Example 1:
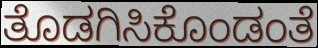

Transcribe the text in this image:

ತೊಡಗಿಸಿಕೊಂಡಂತೆ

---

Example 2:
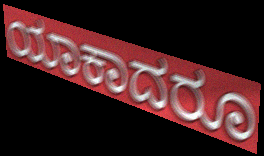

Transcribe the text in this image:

ಯಾಕಾದರೂ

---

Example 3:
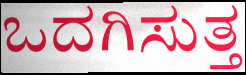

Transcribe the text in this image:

ಒದಗಿಸುತ್ತ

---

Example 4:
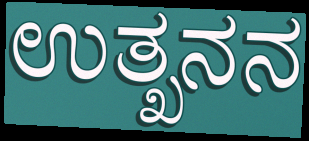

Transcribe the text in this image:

ಉತ್ಖನನ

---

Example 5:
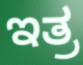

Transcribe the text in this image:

ಇತ್ರ